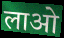
लाओ